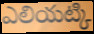
ఎలియట్కి